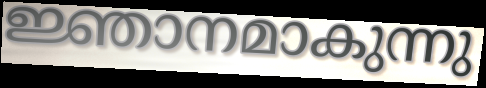
ജ്ഞാനമാകുന്നു